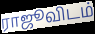
ராஜூவிடம்